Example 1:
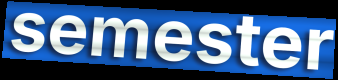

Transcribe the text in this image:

semester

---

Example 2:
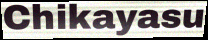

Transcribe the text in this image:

Chikayasu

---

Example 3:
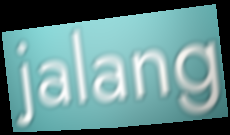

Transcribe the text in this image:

jalang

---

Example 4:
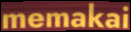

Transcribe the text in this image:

memakai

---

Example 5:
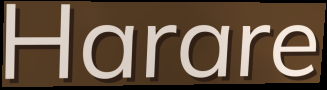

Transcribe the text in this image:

Harare